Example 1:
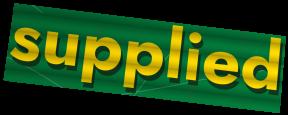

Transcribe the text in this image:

supplied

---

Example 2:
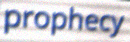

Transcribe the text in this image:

prophecy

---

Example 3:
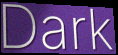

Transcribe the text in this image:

Dark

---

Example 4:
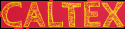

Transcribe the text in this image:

CALTEX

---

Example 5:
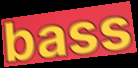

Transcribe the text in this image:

bass